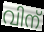
വിന്